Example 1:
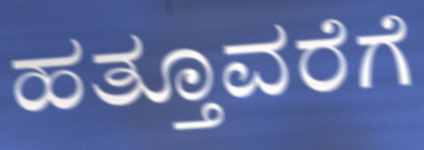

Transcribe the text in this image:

ಹತ್ತೂವರೆಗೆ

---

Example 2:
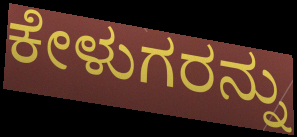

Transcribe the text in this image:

ಕೇಳುಗರನ್ನು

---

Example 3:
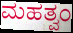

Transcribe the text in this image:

ಮಹತ್ವಂ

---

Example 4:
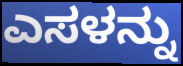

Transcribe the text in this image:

ಎಸಳನ್ನು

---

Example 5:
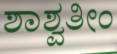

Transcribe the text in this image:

ಶಾಶ್ವತೀಂ